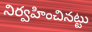
నిర్వహించినట్టు